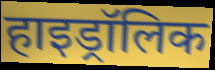
हाइड्रॉलिक